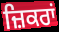
ਜ਼ਿਕਰਾਂ